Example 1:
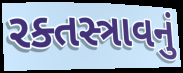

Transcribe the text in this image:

રક્તસ્ત્રાવનું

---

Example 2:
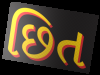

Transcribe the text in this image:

છિત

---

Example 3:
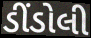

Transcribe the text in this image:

ડીંડોલી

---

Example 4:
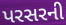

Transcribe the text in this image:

પરસરની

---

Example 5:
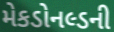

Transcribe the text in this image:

મેકડોનલ્ડની